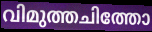
വിമുത്തചിത്തോ